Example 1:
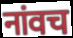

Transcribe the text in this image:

नांवच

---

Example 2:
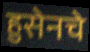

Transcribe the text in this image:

हुसेनचे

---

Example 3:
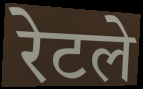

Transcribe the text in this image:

रेटले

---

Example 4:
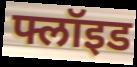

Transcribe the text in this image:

फ्लॉइड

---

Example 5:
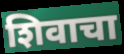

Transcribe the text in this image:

शिवाचा